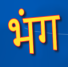
भंग